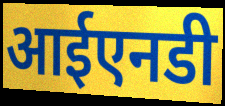
आईएनडी